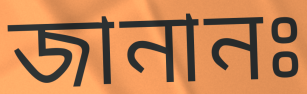
জানানঃ